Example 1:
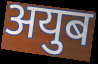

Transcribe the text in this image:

अयुब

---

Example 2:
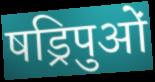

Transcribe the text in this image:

षड्रिपुओं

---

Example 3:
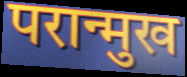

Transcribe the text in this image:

परान्मुख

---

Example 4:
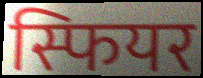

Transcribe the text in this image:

स्फियर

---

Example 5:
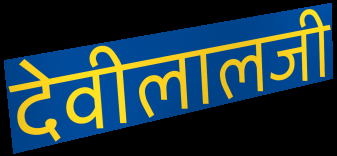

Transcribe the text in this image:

देवीलालजी